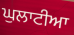
ਘੁਲਾਟੀਆ